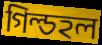
গিল্ডহল